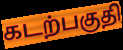
கடற்பகுதி